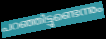
പറഞ്ഞിട്ടുണ്ടെന്നും